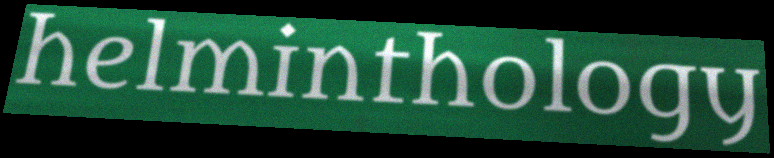
helminthology